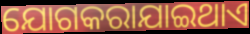
ଯୋଗକରାଯାଇଥାଏ